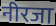
नीरजा